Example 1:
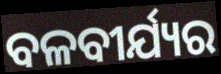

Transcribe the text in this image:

ବଳବୀର୍ଯ୍ୟର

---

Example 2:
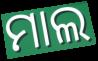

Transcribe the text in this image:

ମାଲ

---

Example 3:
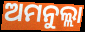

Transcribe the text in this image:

ଅମନୁଲ୍ଲା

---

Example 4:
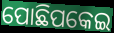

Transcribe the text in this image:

ପୋଛିପକେଇ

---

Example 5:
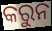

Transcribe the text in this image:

କରୁନ